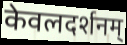
केवलदर्शनम्